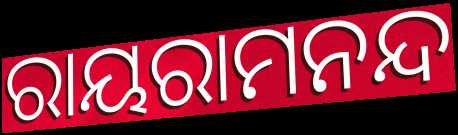
ରାୟରାମନନ୍ଦ